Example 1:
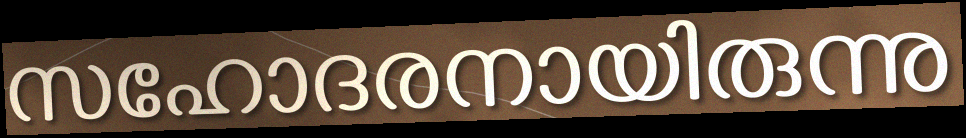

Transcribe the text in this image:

സഹോദരനായിരുന്നു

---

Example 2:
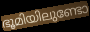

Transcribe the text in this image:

ഭൂമിയിലുണ്ടോ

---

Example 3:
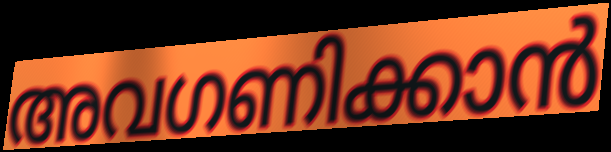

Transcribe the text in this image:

അവഗണിക്കാൻ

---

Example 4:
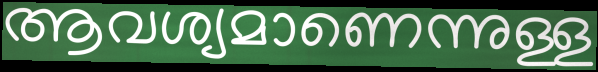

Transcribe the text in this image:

ആവശ്യമാണെന്നുള്ള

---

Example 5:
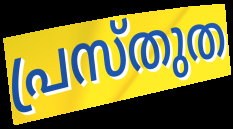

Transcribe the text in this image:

പ്രസ്തുത